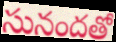
సునందతో